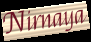
Nirnaya